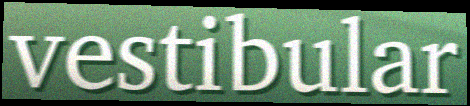
vestibular